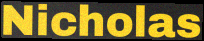
Nicholas